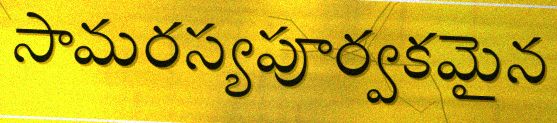
సామరస్యపూర్వకమైన